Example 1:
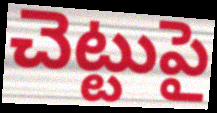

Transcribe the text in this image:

చెట్టుపై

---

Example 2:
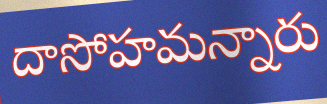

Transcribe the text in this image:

దాసోహమన్నారు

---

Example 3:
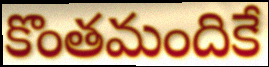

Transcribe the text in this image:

కొంతమందికే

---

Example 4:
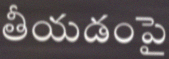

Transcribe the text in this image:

తీయడంపై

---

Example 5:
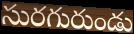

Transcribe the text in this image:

సురగురుండు